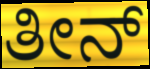
ತೀನ್